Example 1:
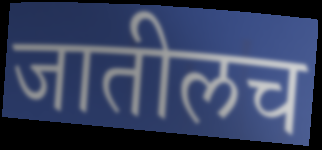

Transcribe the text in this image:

जातीलच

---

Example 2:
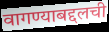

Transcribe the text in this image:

वागण्याबद्दलची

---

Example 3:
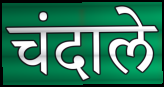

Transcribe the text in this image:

चंदाले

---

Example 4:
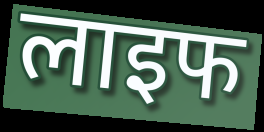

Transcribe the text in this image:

लाइफ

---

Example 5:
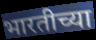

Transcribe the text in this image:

भारतीच्‍या